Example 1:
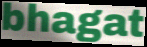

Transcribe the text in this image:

bhagat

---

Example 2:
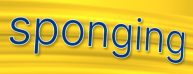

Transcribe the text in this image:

sponging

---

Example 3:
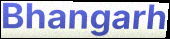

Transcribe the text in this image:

Bhangarh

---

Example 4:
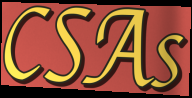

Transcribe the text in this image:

CSAs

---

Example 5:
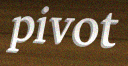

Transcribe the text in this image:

pivot